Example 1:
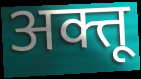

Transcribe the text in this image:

अक्तू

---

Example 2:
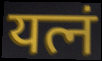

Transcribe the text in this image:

यत्नं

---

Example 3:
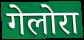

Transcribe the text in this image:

गेलोरा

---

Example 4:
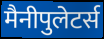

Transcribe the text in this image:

मैनीपुलेटर्स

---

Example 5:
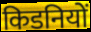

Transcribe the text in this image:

किडनियों